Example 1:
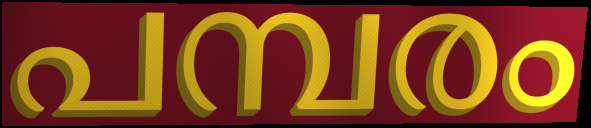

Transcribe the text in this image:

പമ്പരം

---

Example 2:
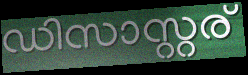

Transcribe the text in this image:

ഡിസാസ്റ്റര്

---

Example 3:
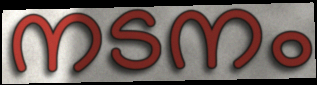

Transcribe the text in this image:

നടനം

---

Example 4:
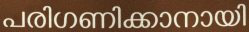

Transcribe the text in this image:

പരിഗണിക്കാനായി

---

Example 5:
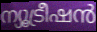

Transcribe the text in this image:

ന്യൂട്രീഷൻ